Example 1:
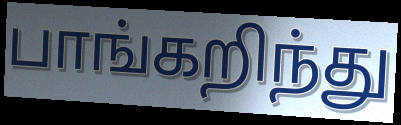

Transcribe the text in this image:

பாங்கறிந்து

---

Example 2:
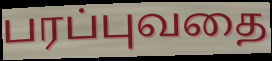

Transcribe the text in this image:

பரப்புவதை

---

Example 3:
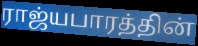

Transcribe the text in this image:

ராஜ்யபாரத்தின்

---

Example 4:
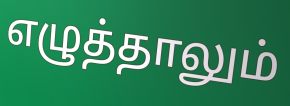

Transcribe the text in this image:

எழுத்தாலும்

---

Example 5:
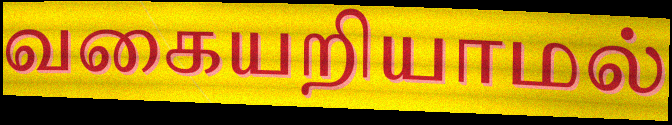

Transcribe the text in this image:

வகையறியாமல்